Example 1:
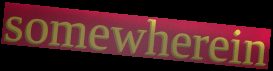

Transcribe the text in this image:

somewherein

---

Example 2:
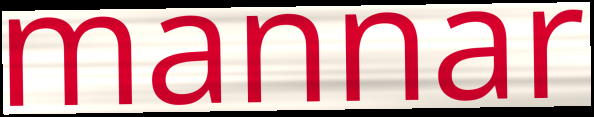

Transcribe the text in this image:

mannar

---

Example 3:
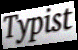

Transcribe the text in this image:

Typist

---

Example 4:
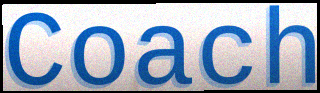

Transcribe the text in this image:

Coach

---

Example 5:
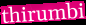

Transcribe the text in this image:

thirumbi